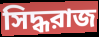
সিদ্ধরাজ